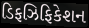
ડિફઝિફિકેશન